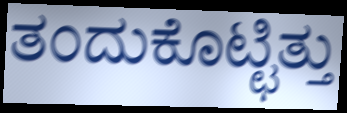
ತಂದುಕೊಟ್ಟಿತ್ತು